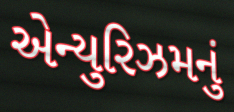
એન્યુરિઝમનું